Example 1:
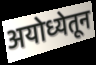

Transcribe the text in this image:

अयोध्येतून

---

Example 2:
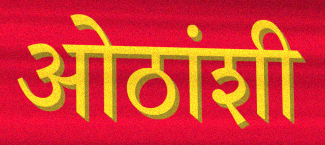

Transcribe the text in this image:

ओठांशी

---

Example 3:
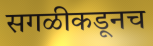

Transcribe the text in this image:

सगळीकडूनच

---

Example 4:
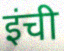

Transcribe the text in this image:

इंची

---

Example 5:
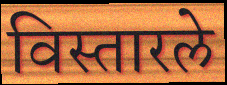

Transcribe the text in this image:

विस्तारले